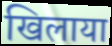
खिलाया